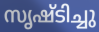
സൃഷ്ടിച്ചു